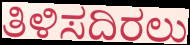
ತಿಳಿಸದಿರಲು